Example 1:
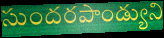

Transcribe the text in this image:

సుందరపాండ్యుని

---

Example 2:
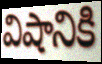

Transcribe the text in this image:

విషానికి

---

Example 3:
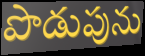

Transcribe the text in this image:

పొడుపును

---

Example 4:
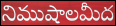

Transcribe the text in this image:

నిముషాలమీద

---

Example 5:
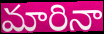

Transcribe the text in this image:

మారినా